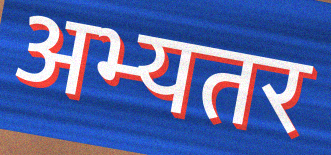
अभ्यतर